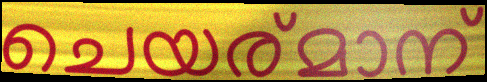
ചെയര്മാന്